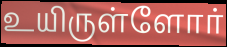
உயிருள்ளோர்